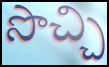
సొచ్చి